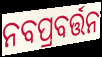
ନବପ୍ରବର୍ତ୍ତନ